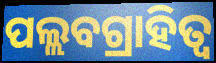
ପଲ୍ଲବଗ୍ରାହିତ୍ୱ